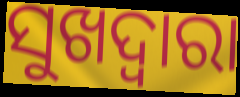
ସୁଖଦ୍ଵାରା